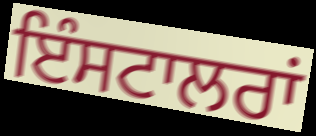
ਇੰਸਟਾਲਰਾਂ